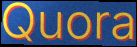
Quora